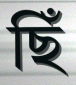
ছিঁ